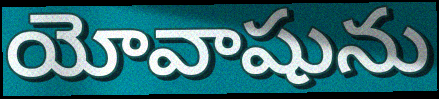
యోవాషును